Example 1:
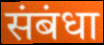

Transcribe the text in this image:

संबंधा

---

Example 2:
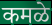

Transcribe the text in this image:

कमळे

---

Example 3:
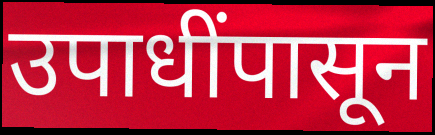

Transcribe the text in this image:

उपाधींपासून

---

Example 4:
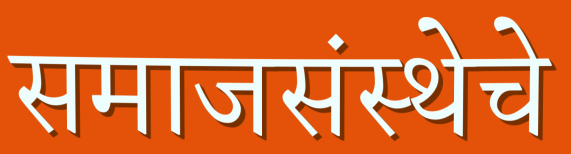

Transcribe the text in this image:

समाजसंस्थेचे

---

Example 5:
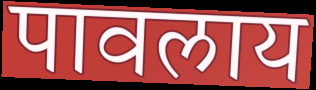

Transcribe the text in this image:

पावलाय